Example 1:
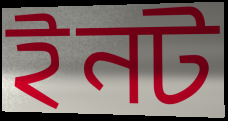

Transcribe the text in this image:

ইনট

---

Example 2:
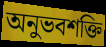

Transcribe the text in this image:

অনুভবশক্তি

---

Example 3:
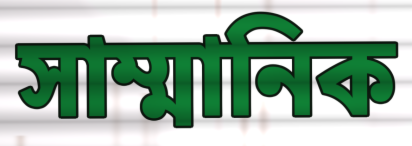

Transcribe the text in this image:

সাম্মানিক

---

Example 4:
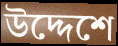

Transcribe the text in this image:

উদ্দেশে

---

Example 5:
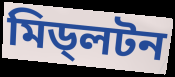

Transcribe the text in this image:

মিড্লটন